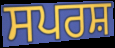
ਸਪਰਸ਼